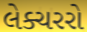
લેક્ચરરો